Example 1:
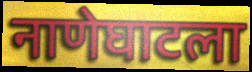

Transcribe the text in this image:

नाणेघाटला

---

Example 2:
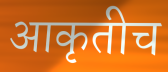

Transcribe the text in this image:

आकृतीच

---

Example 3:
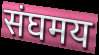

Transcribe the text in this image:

संघमय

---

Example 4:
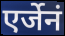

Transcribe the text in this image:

एर्जेनं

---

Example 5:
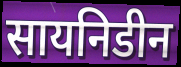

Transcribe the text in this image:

सायनिडीन